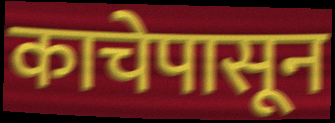
काचेपासून